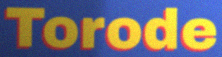
Torode